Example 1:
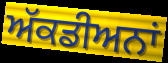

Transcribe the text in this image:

ਅੱਕਡੀਅਨਾਂ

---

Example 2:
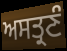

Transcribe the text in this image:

ਅਸਤ੍ਰਣੰ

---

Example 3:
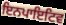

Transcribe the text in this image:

ਇਨਪਾਇਟਿਵ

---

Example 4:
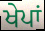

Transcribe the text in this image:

ਖੇਪਾਂ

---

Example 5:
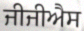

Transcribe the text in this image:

ਜੀਜੀਐਸ